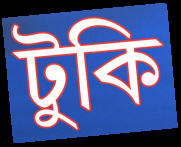
টুকি